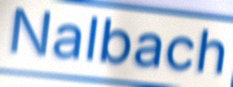
Nalbach